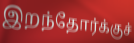
இறந்தோர்க்குச்